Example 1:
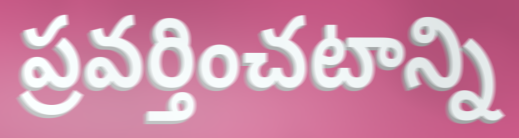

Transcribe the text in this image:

ప్రవర్తించటాన్ని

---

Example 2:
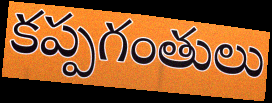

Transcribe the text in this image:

కప్పగంతులు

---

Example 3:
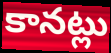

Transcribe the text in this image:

కానట్లు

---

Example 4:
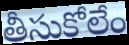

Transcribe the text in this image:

తీసుకోలేం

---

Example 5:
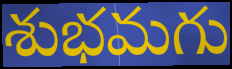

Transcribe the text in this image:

శుభమగు